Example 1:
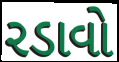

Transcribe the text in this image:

રડાવો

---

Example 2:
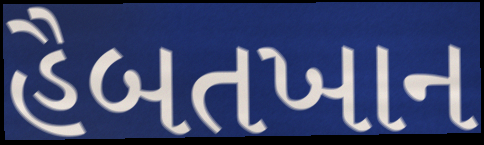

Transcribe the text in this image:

હૈબતખાન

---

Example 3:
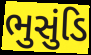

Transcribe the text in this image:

ભુસુંડિ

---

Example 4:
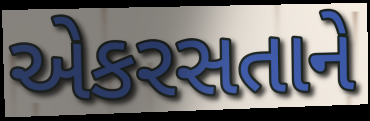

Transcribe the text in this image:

એકરસતાને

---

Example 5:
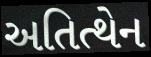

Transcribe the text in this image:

અતિત્થેન